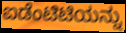
ಐಡೆಂಟಿಟಿಯನ್ನು